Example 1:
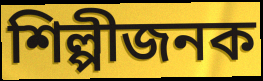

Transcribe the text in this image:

শিল্পীজনক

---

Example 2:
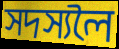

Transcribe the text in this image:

সদস্যলৈ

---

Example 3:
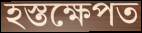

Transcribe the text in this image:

হস্তক্ষেপত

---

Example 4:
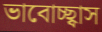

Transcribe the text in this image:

ভাবোচ্ছ্বাস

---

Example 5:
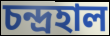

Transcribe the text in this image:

চন্দ্ৰহাল